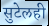
सुटेलही